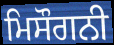
ਮਿਸੌਗਨੀ